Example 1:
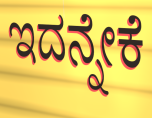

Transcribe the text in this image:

ಇದನ್ನೇಕೆ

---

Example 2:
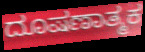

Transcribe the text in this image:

ದೂಷಣಾತ್ಮಕ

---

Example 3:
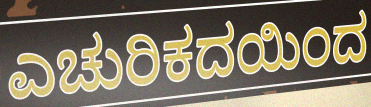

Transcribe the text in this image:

ಎಚುರಿಕದಯಿಂದ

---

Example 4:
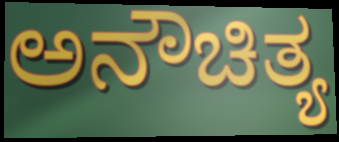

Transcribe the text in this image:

ಅನೌಚಿತ್ಯ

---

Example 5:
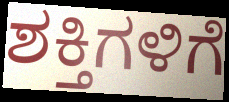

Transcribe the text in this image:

ಶಕ್ತಿಗಳಿಗೆ